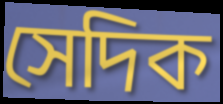
সেদিক